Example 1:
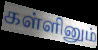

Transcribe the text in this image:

கள்ளினும்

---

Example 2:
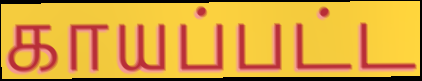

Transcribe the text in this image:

காயப்பட்ட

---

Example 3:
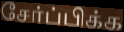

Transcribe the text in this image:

சேர்ப்பிக்க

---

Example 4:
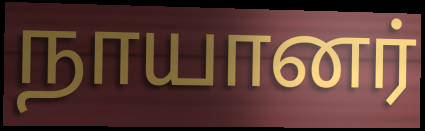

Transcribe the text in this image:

நாயானர்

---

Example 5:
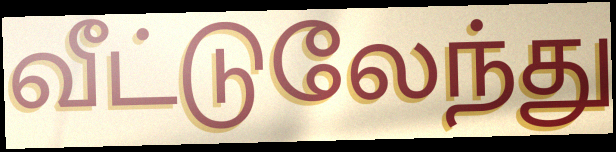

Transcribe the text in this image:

வீட்டுலேந்து